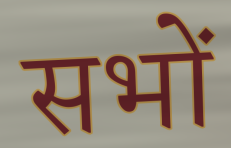
सभों